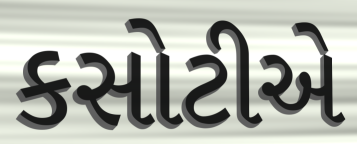
કસોટીએ